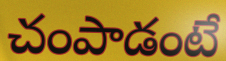
చంపాడంటే